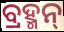
ବ୍ରହ୍ମନ୍